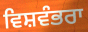
ਵਿਸ਼ਵੰਭਰਾ